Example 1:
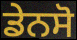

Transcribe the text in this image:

ਡੇਨਸੋ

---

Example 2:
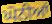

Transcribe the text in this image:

ਘੋਨੀਆਂ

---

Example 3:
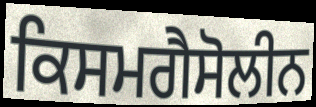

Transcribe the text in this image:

ਕਿਸਮਗੈਸੋਲੀਨ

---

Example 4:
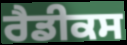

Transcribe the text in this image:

ਰੈਡੀਕਸ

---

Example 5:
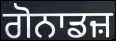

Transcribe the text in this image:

ਗੋਨਾਡਜ਼